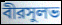
বীরসুলভ